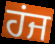
ਹਂਜ